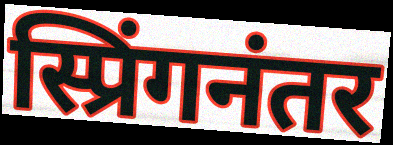
स्प्रिंगनंतर